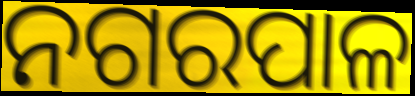
ନଗରପାଳ